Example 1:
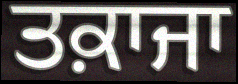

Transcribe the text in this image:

ਤਕ਼ਾਜਾ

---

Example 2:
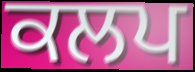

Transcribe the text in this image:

ਕਲਪ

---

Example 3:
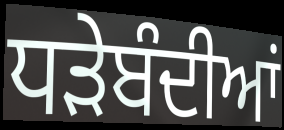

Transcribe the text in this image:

ਧੜੇਬੰਦੀਆਂ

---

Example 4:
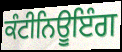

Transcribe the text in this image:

ਕੰਟੀਨਿਊਇੰਗ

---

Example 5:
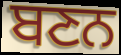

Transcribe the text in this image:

ਬਣਨ